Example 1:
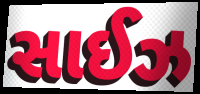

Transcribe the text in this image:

સાઈઝ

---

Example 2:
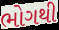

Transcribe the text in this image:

ભોગથી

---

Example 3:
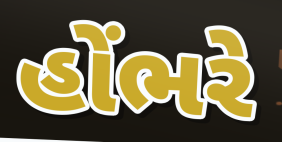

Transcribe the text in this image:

હોંભરે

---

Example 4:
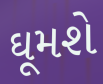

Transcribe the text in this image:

ઘૂમશે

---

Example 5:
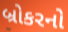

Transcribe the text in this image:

બ્રોકરનો